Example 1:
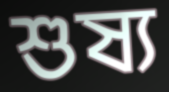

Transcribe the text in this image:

শুষ্য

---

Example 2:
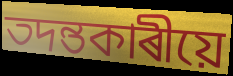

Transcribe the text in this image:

তদন্তকাৰীয়ে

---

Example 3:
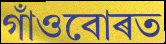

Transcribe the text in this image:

গাঁওবোৰত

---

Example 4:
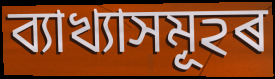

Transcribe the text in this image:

ব্যাখ্যাসমূহৰ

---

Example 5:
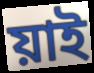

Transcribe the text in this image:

য়াই